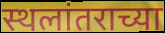
स्थलांतराच्या